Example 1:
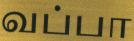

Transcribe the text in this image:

வப்பா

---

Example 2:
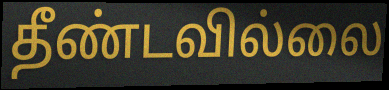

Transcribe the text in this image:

தீண்டவில்லை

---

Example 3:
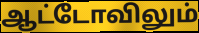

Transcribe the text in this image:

ஆட்டோவிலும்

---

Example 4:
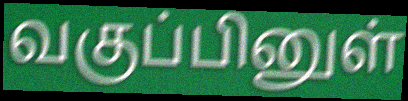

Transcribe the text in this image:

வகுப்பினுள்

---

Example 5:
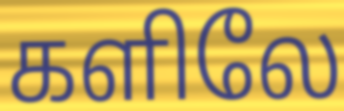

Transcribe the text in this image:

களிலே